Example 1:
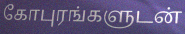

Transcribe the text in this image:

கோபுரங்களுடன்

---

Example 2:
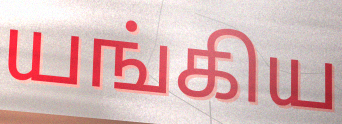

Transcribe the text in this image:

யங்கிய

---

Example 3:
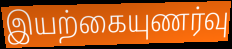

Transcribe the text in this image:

இயற்கையுணர்வு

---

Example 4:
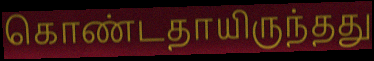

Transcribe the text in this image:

கொண்டதாயிருந்தது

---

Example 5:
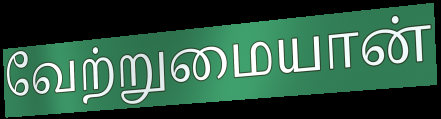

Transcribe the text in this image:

வேற்றுமையான்